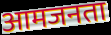
आमजनता